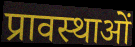
प्रावस्थाओं